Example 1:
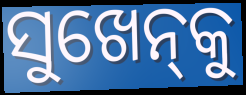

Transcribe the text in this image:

ସୁଖେନ୍‌କୁ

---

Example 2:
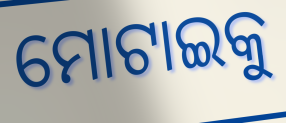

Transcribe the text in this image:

ମୋଟାଇକୁ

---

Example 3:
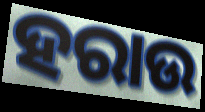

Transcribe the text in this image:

ହରାଉ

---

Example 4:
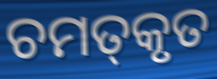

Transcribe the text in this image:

ଚମତ୍‍କୃତ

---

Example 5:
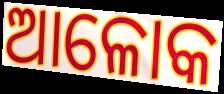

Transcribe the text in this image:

ଆଳୋକ